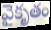
వైకృతం